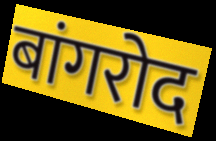
बांगरोद